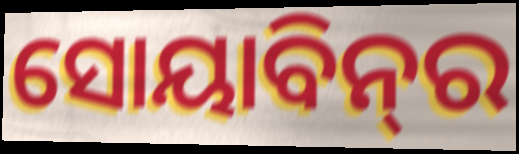
ସୋୟାବିନ୍‌ର